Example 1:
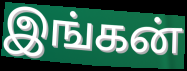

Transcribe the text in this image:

இங்கன்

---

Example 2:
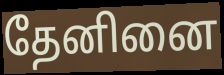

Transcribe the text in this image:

தேனினை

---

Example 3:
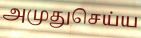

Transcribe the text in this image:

அமுதுசெய்ய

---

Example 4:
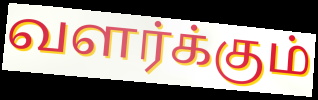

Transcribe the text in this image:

வளர்க்கும்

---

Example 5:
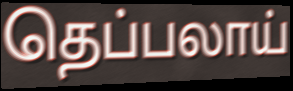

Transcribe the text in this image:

தெப்பலாய்